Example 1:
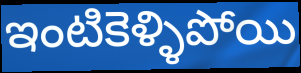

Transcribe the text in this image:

ఇంటికెళ్ళిపోయి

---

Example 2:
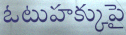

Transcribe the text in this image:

ఓటుహక్కుపై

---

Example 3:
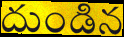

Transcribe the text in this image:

దుండిన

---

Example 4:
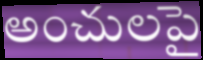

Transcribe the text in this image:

అంచులపై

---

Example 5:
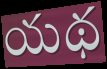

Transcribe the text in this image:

యథ